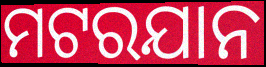
ମଟରଯାନ